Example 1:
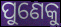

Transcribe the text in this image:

ପୁଣେକୁ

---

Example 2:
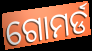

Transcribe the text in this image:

ଗୋମର୍ଡ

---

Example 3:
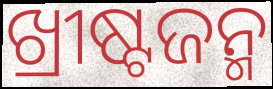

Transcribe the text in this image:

ଖ୍ରୀଷ୍ଟଜନ୍ମ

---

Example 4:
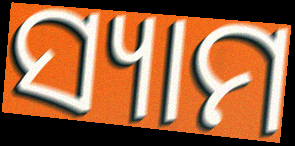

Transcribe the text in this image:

ସ୍ୟାମ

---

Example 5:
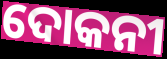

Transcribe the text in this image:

ଦୋକନୀ